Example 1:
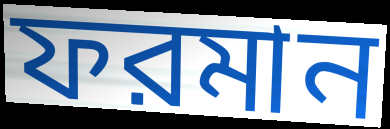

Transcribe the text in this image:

ফরমান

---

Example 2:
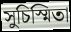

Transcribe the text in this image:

সুচিস্মিতা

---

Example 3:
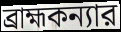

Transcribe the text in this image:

ব্রাহ্মকন্যার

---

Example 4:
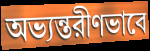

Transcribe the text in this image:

অভ্যন্তরীণভাবে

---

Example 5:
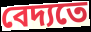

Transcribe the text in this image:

বেদ্যতে